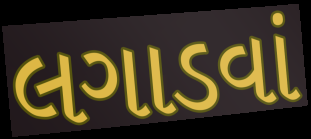
લગાડવાં